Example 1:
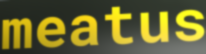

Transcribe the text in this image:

meatus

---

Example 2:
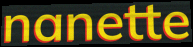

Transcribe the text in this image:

nanette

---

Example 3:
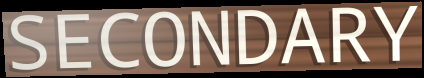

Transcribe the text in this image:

SECONDARY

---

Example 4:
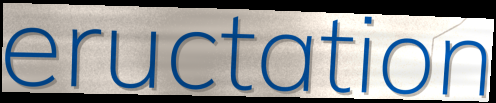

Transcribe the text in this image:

eructation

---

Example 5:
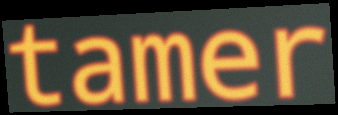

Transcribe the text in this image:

tamer